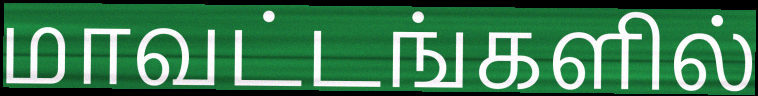
மாவட்டங்களில்